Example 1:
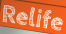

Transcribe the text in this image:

Relife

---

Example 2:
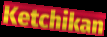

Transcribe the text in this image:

Ketchikan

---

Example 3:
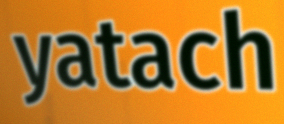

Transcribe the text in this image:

yatach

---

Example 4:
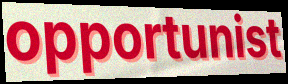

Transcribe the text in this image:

opportunist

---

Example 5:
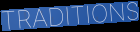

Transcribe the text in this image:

TRADITIONS